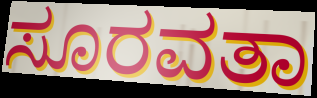
ಸೂರವತಾ